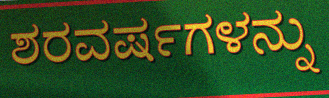
ಶರವರ್ಷಗಳನ್ನು